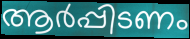
ആർപ്പിടണം